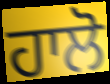
ਹਾਲੋ